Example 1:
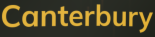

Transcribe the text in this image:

Canterbury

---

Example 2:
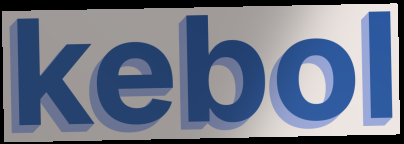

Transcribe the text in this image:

kebol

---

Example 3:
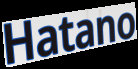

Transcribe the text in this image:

Hatano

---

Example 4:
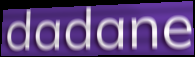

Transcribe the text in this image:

dadane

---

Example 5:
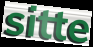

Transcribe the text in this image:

sitte